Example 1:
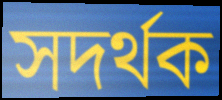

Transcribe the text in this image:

সদর্থক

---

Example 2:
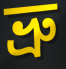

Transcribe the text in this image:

ভ্রু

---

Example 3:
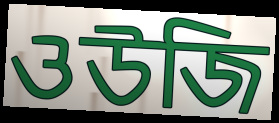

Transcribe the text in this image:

ওউজি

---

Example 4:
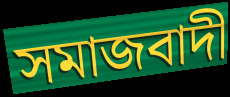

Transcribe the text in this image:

সমাজবাদী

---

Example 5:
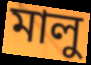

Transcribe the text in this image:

মালু